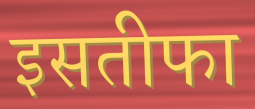
इसतीफा